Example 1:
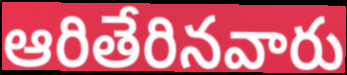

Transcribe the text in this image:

ఆరితేరినవారు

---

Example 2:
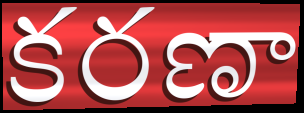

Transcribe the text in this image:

కరణా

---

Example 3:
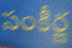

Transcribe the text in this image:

సంకీర్ణ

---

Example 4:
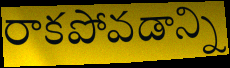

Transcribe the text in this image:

రాకపోవడాన్ని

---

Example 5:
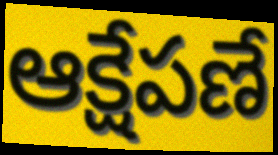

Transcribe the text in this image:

ఆక్షేపణే